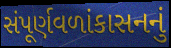
સંપૂર્ણવળાંકાસનનું